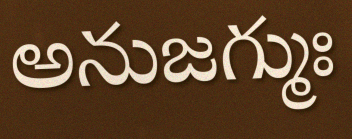
అనుజగ్ముః